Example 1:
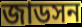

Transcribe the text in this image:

জাডসন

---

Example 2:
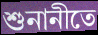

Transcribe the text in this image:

শুনানীতে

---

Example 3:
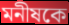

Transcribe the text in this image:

মনীষকে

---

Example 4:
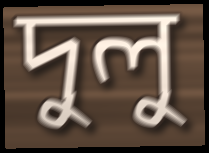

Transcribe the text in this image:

দুলু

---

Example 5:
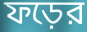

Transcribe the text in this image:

ফড়ের